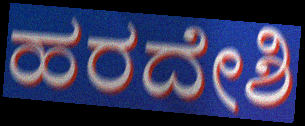
ಹರದೇಶಿ